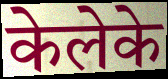
केलेके